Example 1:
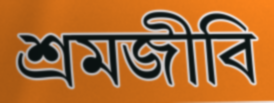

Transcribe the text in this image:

শ্রমজীবি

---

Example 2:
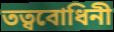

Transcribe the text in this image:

তত্ববোধিনী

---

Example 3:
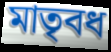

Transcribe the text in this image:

মাতৃবধ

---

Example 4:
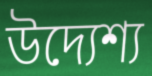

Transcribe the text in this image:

উদ্যেশ্য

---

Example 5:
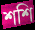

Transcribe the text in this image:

শশি